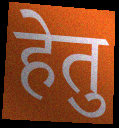
हेतु